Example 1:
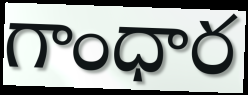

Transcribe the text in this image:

గాంధార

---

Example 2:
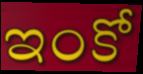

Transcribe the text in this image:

ఇంకో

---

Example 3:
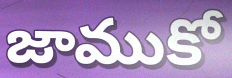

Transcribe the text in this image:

జాముకో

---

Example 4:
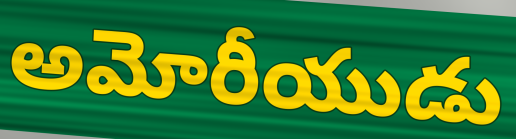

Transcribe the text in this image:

అమోరీయుడు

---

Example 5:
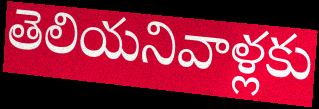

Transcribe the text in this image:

తెలియనివాళ్లకు